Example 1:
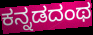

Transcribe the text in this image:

ಕನ್ನಡದಂಥ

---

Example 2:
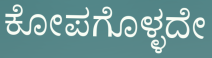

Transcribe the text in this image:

ಕೋಪಗೊಳ್ಳದೇ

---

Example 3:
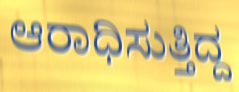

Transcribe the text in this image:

ಆರಾಧಿಸುತ್ತಿದ್ದ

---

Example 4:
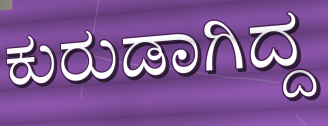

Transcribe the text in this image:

ಕುರುಡಾಗಿದ್ದ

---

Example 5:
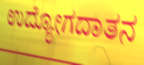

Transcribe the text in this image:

ಉದ್ಯೋಗದಾತನ